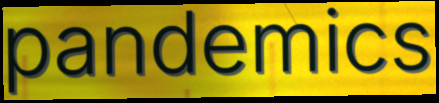
pandemics